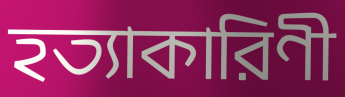
হত্যাকারিণী